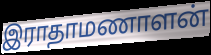
இராதாமணாளன்